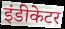
इंडीकेटर